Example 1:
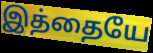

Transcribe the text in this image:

இத்தையே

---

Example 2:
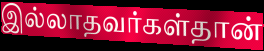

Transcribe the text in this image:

இல்லாதவர்கள்தான்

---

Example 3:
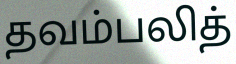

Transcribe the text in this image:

தவம்பலித்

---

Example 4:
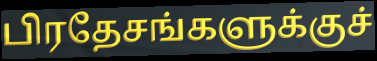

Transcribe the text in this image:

பிரதேசங்களுக்குச்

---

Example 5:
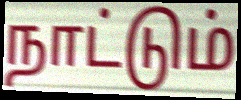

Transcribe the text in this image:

நாட்டும்